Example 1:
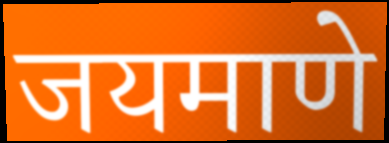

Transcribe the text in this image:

जयमाणे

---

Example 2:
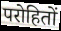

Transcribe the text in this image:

परोहितों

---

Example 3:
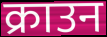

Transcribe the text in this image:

क्राउन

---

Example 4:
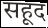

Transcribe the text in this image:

सहूद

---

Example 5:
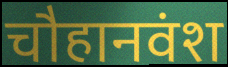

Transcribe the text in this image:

चौहानवंश